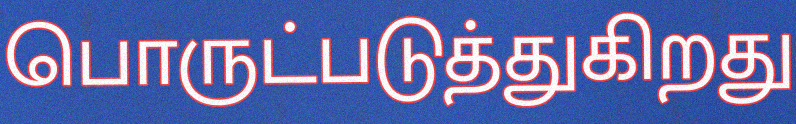
பொருட்படுத்துகிறது